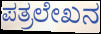
ಪತ್ರಲೇಖನ